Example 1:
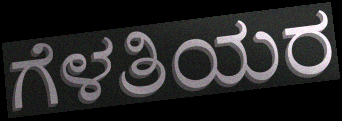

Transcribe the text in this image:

ಗೆಳತಿಯರ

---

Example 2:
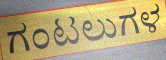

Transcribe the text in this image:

ಗಂಟಲುಗಳ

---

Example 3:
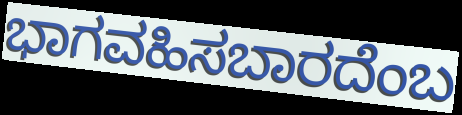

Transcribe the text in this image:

ಭಾಗವಹಿಸಬಾರದೆಂಬ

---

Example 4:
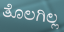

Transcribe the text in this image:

ತೊಲಗಿಲ್ಲ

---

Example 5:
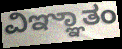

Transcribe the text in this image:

ವಿಞ್ಞಾತಂ